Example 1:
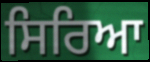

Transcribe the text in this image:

ਸਿਰਿਆ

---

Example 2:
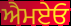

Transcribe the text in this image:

ਐਮਏਓ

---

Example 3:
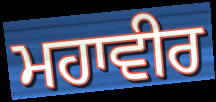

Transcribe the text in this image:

ਮਹਾਵੀਰ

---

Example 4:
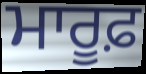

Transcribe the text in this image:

ਮਾਰੂਫ਼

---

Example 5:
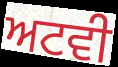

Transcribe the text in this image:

ਅਟਵੀ